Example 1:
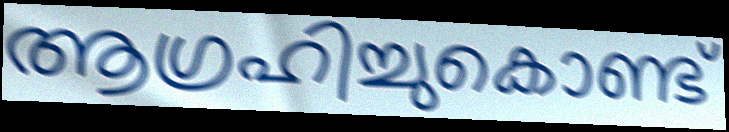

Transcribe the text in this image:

ആഗ്രഹിച്ചുകൊണ്ട്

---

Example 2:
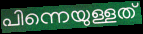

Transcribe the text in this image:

പിന്നെയുള്ളത്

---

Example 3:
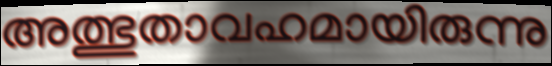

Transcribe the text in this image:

അത്ഭുതാവഹമായിരുന്നു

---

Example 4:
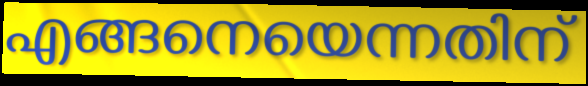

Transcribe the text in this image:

എങ്ങനെയെന്നതിന്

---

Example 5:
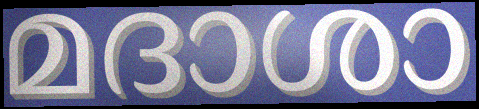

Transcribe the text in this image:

മദാശാ